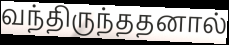
வந்திருந்ததனால்